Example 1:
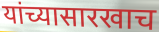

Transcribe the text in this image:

यांच्यासारखाच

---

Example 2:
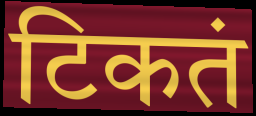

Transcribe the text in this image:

टिकतं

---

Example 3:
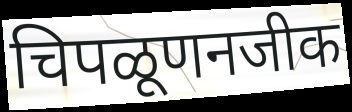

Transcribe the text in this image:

चिपळूणनजीक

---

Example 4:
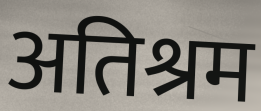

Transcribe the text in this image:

अतिश्रम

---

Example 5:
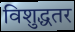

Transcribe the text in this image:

विशुद्धतर